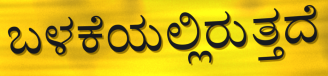
ಬಳಕೆಯಲ್ಲಿರುತ್ತದೆ